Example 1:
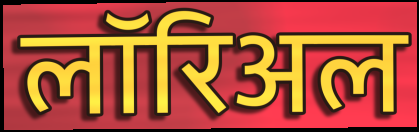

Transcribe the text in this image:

लॉरिअल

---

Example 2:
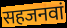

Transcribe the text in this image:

सहजनवां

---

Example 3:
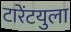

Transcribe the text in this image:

टारेंटयुला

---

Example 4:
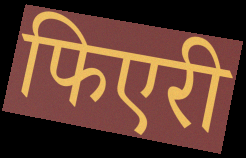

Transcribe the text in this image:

फिएरी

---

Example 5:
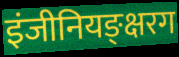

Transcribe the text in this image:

इंजीनियङ्क्षरग